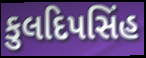
કુલદિપસિંહ